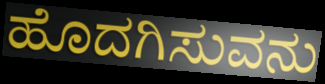
ಹೊದಗಿಸುವನು